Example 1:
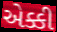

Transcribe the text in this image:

એક્કી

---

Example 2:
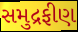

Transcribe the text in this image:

સમુદ્રફીણ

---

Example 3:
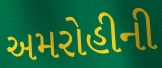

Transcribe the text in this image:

અમરોહીની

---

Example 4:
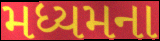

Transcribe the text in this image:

મધ્યમના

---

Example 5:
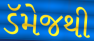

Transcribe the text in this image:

ડૅમેજથી